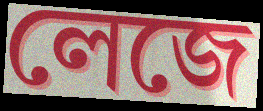
লেজে